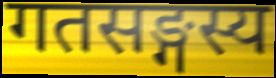
गतसङ्गस्य